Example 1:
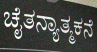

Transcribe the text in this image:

ಚೈತನ್ಯಾತ್ಮಕನೆ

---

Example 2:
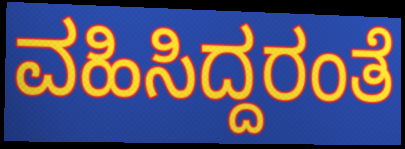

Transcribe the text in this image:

ವಹಿಸಿದ್ದರಂತೆ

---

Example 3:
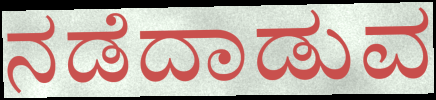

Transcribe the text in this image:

ನಡೆದಾಡುವ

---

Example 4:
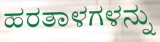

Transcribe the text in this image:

ಹರತಾಳಗಳನ್ನು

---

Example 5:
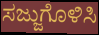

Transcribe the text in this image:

ಸಜ್ಜುಗೊಳಿಸಿ